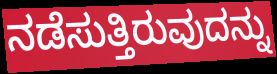
ನಡೆಸುತ್ತಿರುವುದನ್ನು